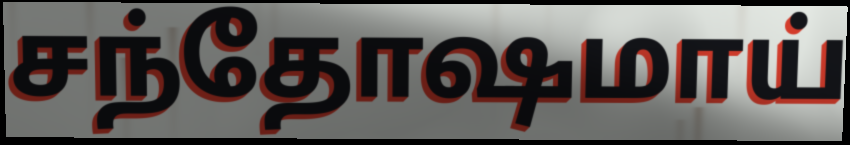
சந்தோஷமாய்